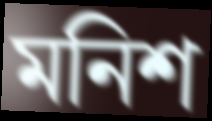
মনিশ